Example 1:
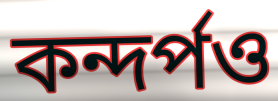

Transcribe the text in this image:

কন্দর্পও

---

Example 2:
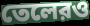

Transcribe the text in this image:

তেলেরও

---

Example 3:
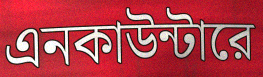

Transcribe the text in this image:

এনকাউন্টারে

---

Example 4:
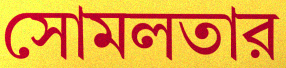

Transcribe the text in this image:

সোমলতার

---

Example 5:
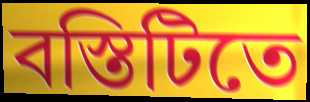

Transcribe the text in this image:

বস্তিটিতে